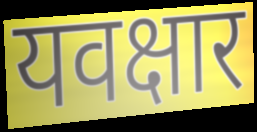
यवक्षार